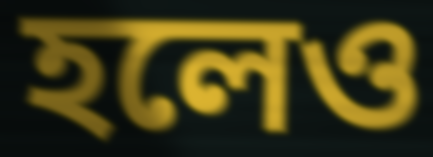
হলেও